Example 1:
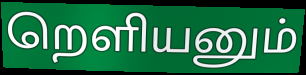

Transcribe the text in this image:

றெளியனும்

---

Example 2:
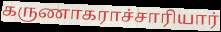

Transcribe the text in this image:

கருணாகராச்சாரியார்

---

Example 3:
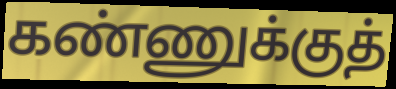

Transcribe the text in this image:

கண்ணுக்குத்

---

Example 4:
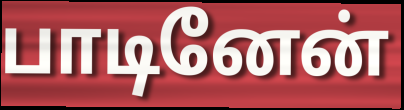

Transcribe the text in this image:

பாடினேன்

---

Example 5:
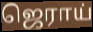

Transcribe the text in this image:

ஜெராய்